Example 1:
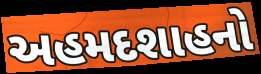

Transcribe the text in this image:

અહમદશાહનો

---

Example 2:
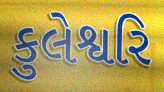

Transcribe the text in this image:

કુલેશ્વરિ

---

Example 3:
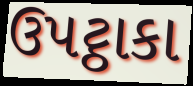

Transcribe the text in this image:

ઉપટ્ઠાકા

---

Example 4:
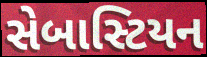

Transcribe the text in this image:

સેબાસ્ટિયન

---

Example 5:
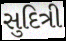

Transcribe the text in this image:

સુદિત્રી